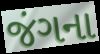
જંગના